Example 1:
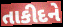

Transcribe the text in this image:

તાકીદને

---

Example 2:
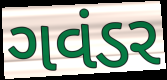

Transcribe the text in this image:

ગવંડર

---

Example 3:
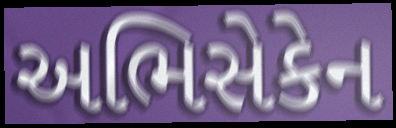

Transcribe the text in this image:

અભિસેકેન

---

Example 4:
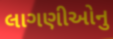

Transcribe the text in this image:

લાગણીઓનુ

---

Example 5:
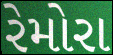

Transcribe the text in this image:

રેમોરા